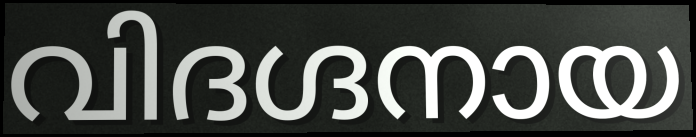
വിദഗ്ദനായ